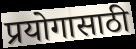
प्रयोगासाठी